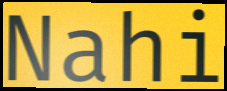
Nahi